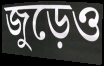
জুড়েও